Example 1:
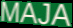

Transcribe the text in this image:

MAJA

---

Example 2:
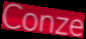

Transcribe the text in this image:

Conze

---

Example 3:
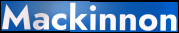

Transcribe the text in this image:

Mackinnon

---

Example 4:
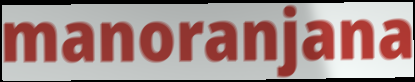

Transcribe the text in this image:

manoranjana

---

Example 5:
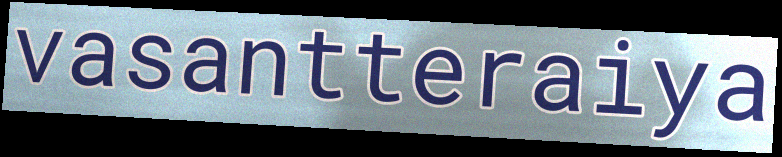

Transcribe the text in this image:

vasantteraiya